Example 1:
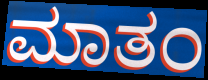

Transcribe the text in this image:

ಮಾತಂ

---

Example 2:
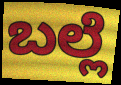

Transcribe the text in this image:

ಬಲ್ಲೆ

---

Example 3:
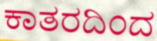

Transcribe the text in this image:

ಕಾತರದಿಂದ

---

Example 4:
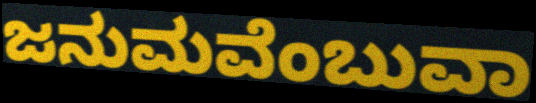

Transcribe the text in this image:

ಜನುಮವೆಂಬುವಾ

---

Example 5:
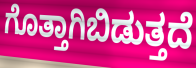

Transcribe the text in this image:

ಗೊತ್ತಾಗಿಬಿಡುತ್ತದೆ